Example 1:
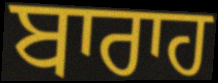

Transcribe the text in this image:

ਬਾਰਾਹ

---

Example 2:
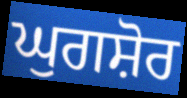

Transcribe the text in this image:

ਘੁਗਸ਼ੋਰ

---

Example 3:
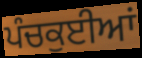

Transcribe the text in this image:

ਪੰਚਕੁਈਆਂ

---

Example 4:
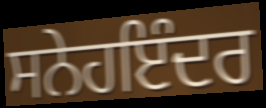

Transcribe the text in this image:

ਸਨੇਹਇੰਦਰ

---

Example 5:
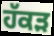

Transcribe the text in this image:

ਹੱਕੜ